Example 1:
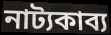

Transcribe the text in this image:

নাট্যকাব্য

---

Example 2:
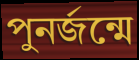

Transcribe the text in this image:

পুনর্জন্মে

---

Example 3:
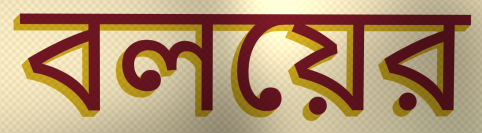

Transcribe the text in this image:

বলয়ের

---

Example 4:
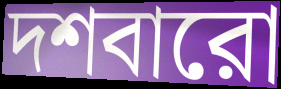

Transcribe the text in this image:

দশবারো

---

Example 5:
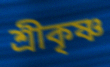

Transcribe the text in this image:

শ্রীকৃষ্ণ